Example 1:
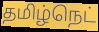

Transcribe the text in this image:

தமிழ்நெட்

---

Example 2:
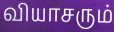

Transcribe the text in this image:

வியாசரும்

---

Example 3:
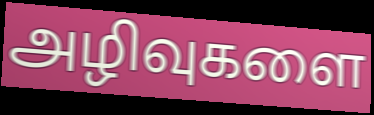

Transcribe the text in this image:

அழிவுகளை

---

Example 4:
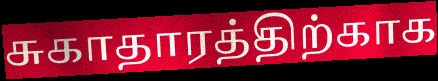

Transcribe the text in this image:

சுகாதாரத்திற்காக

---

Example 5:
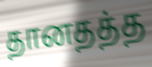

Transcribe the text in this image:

தானதத்த